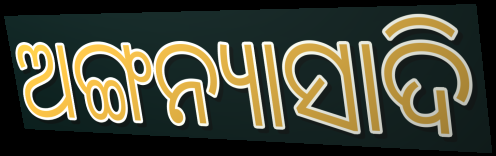
ଅଙ୍ଗନ୍ୟାସାଦି